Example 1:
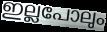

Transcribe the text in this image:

ഇല്ലപോലും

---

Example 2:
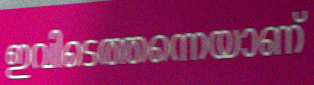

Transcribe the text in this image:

ഇവിടെത്തന്നെയാണ്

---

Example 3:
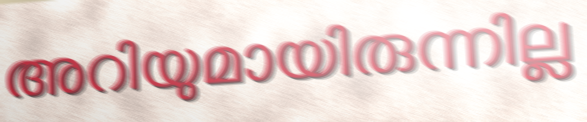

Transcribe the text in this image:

അറിയുമായിരുന്നില്ല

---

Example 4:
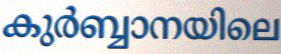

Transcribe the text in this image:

കുർബ്ബാനയിലെ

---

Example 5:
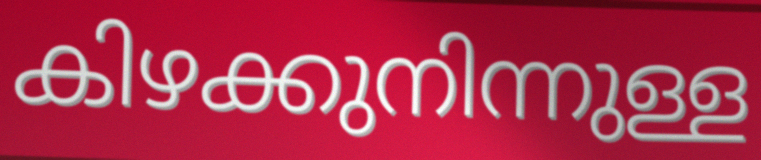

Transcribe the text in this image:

കിഴക്കുനിന്നുള്ള